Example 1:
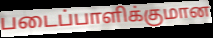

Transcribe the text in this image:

படைப்பாளிக்குமான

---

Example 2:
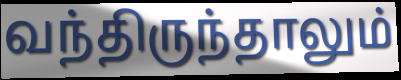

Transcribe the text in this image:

வந்திருந்தாலும்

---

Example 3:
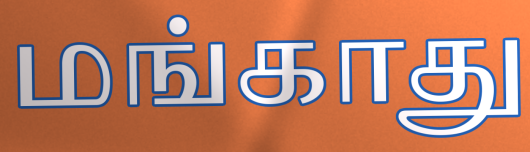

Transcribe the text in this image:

மங்காது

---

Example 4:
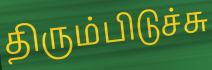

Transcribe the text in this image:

திரும்பிடுச்சு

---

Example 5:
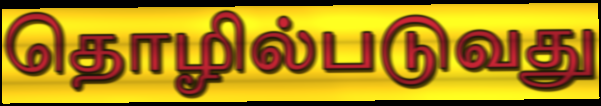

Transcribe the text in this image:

தொழில்படுவது